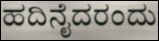
ಹದಿನೈದರಂದು